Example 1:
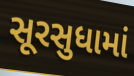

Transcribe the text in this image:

સૂરસુધામાં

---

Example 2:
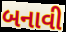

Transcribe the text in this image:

બનાવી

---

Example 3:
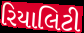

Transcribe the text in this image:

રિયાલિટી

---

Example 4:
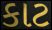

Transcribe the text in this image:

કાટ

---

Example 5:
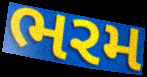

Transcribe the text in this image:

ભરમ